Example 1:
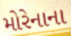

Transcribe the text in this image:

મોરેનાના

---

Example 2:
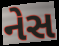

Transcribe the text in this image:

નેસ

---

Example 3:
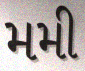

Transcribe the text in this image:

મમી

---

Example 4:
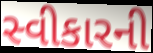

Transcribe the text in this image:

સ્વીકારની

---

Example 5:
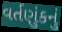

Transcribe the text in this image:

વર્તણુંકનું